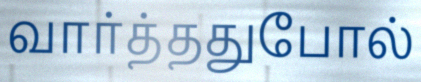
வார்த்ததுபோல்